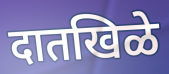
दातखिळे